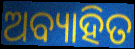
ଅବ୍ୟାହିତ